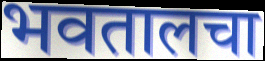
भवतालचा